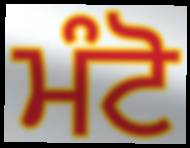
ਮੰਟੋ